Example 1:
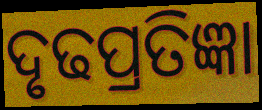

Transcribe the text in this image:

ଦୃଢପ୍ରତିଜ୍ଞା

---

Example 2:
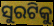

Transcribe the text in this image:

ସୁରଟିକୁ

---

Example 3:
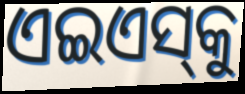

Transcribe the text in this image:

ଏଇଏସ୍‌କୁ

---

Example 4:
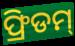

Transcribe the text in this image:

ଫ୍ରିଡମ୍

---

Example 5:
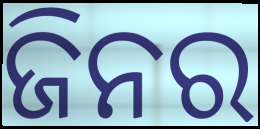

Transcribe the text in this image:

ଜିନର